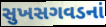
સુખસગવડનાં